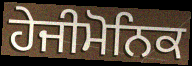
ਹੇਜੀਮੋਨਿਕ